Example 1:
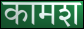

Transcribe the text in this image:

कामश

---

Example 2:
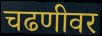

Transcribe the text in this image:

चढणीवर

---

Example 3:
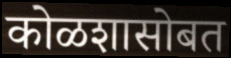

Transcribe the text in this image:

कोळशासोबत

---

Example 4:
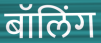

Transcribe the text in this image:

बॉलिंग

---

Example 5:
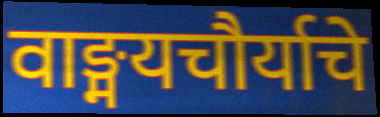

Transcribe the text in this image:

वाङ्मयचौर्याचे